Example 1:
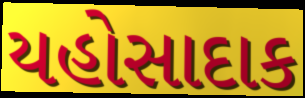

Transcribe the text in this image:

યહોસાદાક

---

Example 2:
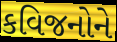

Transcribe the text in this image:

કવિજનોને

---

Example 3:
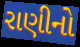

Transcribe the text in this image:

રાણીનો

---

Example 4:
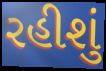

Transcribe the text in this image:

રહીશું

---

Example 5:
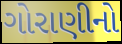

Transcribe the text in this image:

ગોરાણીનો